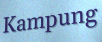
Kampung